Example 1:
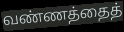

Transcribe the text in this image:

வண்ணத்தைத்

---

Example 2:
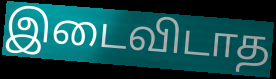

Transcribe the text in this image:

இடைவிடாத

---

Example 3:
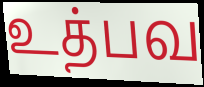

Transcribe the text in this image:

உத்பவ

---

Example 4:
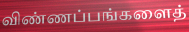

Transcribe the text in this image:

விண்ணப்பங்களைத்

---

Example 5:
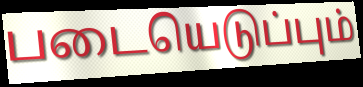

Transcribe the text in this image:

படையெடுப்பும்